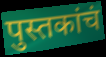
पुस्तकांचं